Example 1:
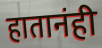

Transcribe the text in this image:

हातानंही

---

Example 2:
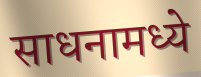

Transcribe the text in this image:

साधनामध्ये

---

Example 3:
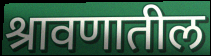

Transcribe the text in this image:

श्रावणातील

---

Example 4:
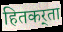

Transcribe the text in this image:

हितकर्ता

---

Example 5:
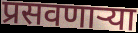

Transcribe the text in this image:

प्रसवणाऱ्या